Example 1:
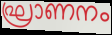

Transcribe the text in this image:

ഘ്രാണനം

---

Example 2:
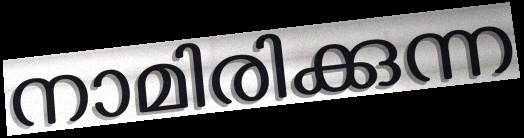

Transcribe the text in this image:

നാമിരിക്കുന്ന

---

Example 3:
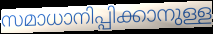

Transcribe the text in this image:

സമാധാനിപ്പിക്കാനുള്ള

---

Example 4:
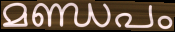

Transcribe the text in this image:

മണ്ഡപം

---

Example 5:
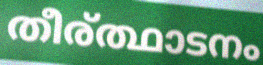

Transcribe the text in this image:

തീര്ത്ഥാടനം